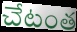
చేటంత